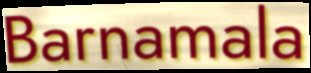
Barnamala